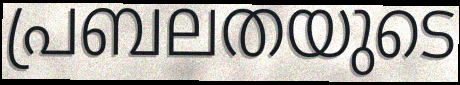
പ്രബലതയുടെ